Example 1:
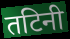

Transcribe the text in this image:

तटिनी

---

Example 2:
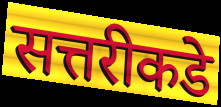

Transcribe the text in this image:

सत्तरीकडे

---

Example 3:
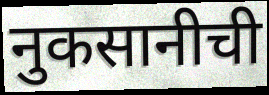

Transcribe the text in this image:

नुकसानीची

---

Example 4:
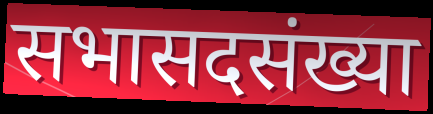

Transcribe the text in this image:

सभासदसंख्या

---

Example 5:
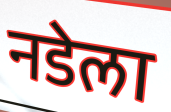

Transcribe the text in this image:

नडेला